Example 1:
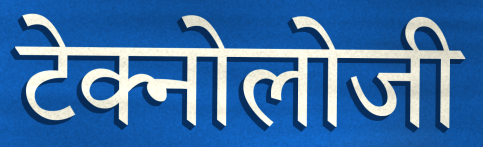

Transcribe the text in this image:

टेक्नोलोजी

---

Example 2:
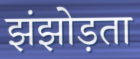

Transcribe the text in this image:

झंझोड़ता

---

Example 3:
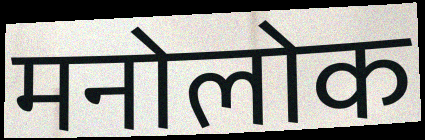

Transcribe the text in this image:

मनोलोक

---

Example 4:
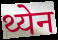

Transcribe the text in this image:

थ्येन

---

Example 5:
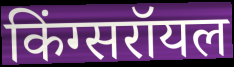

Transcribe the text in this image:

किंग्सरॉयल